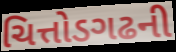
ચિત્તોડગઢની